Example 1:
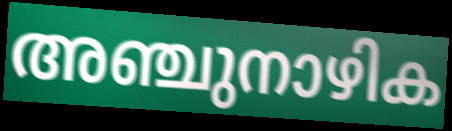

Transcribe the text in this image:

അഞ്ചുനാഴിക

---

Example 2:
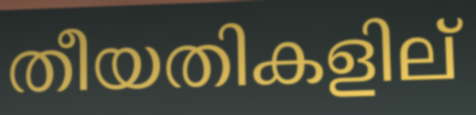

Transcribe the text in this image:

തീയതികളില്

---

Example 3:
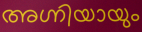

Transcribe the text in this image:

അഗ്നിയായും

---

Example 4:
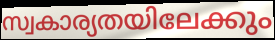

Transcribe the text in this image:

സ്വകാര്യതയിലേക്കും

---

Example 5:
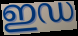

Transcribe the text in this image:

ഇഡ